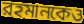
রহমানকেও